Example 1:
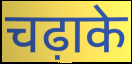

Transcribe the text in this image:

चढ़ाके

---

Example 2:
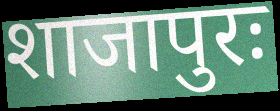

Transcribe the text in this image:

शाजापुरः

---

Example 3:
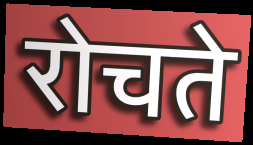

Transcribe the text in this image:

रोचते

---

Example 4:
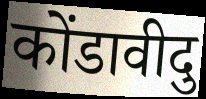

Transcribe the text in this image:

कोंडावीदु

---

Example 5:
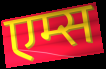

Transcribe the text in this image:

एम्‍स